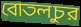
বোতলচুর